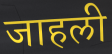
जाहली